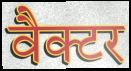
वैक्टर